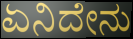
ಏನಿದೇನು